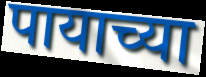
पायाच्या